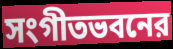
সংগীতভবনের